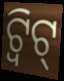
ଟ୍ୱିଟ୍